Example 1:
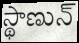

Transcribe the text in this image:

స్థాణున్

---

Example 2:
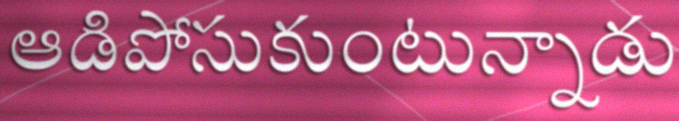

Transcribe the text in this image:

ఆడిపోసుకుంటున్నాడు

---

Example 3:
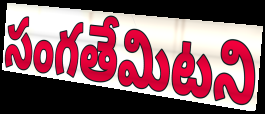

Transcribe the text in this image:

సంగతేమిటని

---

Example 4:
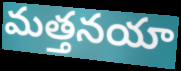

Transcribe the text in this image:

మత్తనయా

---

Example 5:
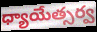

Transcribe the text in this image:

ధ్యాయేత్సర్వ